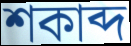
শকাব্দ